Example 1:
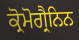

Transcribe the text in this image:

ਕ੍ਰੋਮੋਗ੍ਰੈਨਿਨ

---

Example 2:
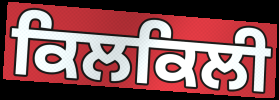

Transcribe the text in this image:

ਕਿਲਕਿਲੀ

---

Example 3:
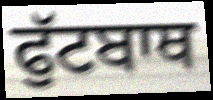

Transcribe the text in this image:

ਫੁੱਟਬਾਥ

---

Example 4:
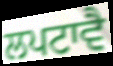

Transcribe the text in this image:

ਲਪਟਾਵੈ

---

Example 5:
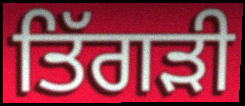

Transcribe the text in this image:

ਤਿੱਗੜੀ